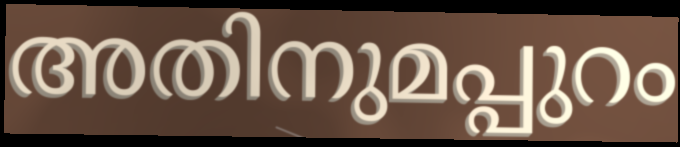
അതിനുമപ്പുറം